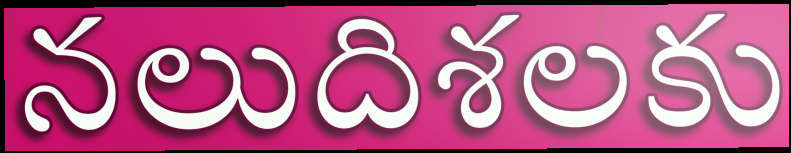
నలుదిశలకు